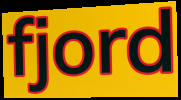
fjord